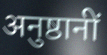
अनुष्ठानीं